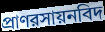
প্রাণরসায়নবিদ